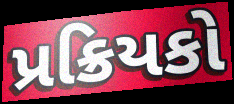
પ્રક્રિયકો